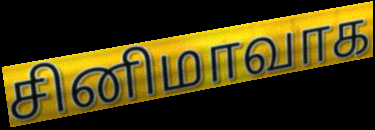
சினிமாவாக